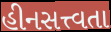
હીનસત્ત્વતા